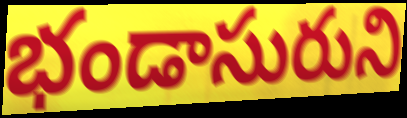
భండాసురుని